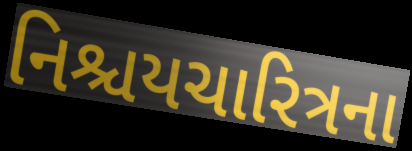
નિશ્ચયચારિત્રના